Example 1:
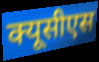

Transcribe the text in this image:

क्यूसीएस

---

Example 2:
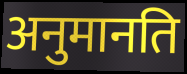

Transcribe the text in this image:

अनुमानति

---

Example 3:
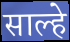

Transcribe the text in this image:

साल्हे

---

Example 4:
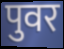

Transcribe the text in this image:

पुवर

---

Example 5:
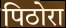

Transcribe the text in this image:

पिठोरा